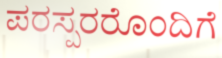
ಪರಸ್ಪರರೊಂದಿಗೆ